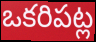
ఒకరిపట్ల